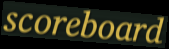
scoreboard